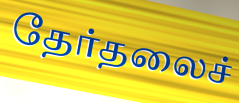
தேர்தலைச்